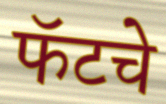
फॅटचे